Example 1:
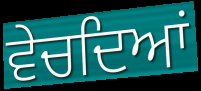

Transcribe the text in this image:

ਵੇਚਦਿਆਂ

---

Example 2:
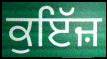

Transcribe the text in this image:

ਕੁਇੱਜ਼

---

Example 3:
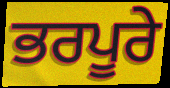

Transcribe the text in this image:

ਭਰਪੂਰੇ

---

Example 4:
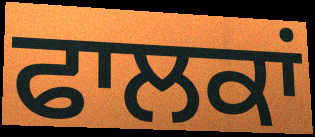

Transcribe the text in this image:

ਫਾਲਕਾਂ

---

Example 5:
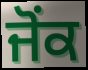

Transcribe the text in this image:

ਜੋਂਕ